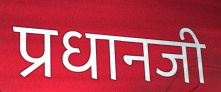
प्रधानजी